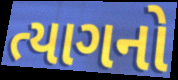
ત્યાગનો